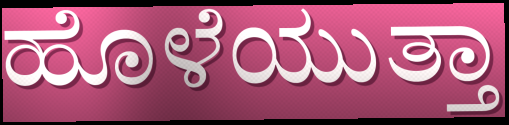
ಹೊಳೆಯುತ್ತಾ